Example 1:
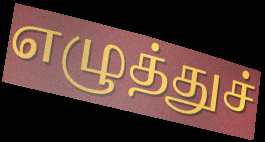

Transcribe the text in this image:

எழுத்துச்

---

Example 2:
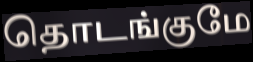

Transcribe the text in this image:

தொடங்குமே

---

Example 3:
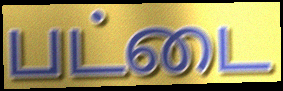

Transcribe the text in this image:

பட்டை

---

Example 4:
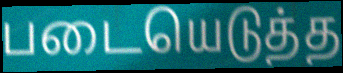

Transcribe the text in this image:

படையெடுத்த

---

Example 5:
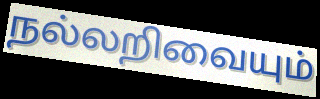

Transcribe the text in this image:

நல்லறிவையும்